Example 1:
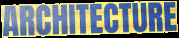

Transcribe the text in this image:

ARCHITECTURE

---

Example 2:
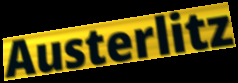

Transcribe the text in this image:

Austerlitz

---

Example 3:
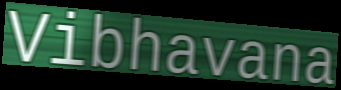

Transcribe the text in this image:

Vibhavana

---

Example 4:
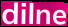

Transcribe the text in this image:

dilne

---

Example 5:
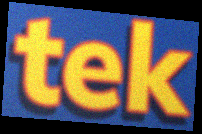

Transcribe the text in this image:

tek